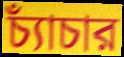
চ্যাঁচার